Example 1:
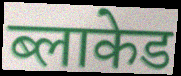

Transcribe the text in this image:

ब्लाकेड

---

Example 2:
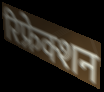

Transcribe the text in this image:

रिफ्रेक्शन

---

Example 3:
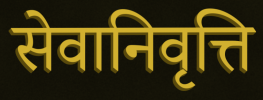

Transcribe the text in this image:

सेवानिवृत्ति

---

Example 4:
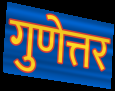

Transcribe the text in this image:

गुणेत्तर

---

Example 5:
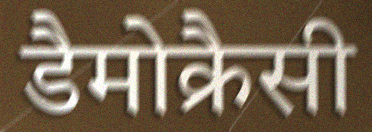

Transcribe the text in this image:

डैमोक्रैसी